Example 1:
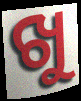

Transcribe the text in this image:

ଖୁ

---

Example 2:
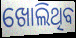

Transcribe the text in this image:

ଖୋଲିଥିବ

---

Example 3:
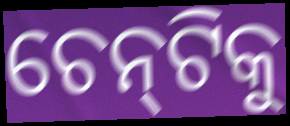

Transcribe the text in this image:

ଚେନ୍‌ଟିକୁ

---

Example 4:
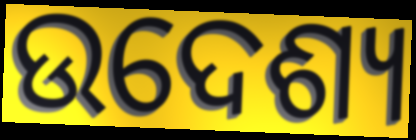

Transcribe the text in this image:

ଉଦେଶ୍ୟ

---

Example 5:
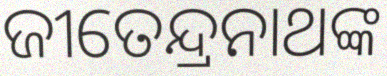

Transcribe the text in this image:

ଜୀତେନ୍ଦ୍ରନାଥଙ୍କ